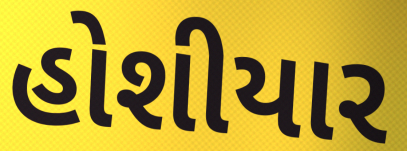
હોશીયાર